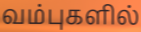
வம்புகளில்